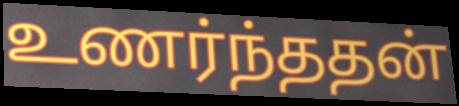
உணர்ந்ததன்